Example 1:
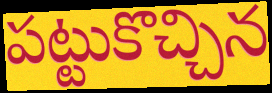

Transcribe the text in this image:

పట్టుకొచ్చిన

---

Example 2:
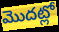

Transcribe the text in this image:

మొదట్లో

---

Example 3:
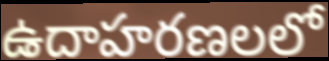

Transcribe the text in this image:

ఉదాహరణలలో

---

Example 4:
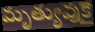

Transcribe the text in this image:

మృత్యువుకై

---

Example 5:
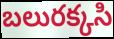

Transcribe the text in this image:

బలురక్కసి